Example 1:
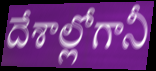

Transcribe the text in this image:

దేశాల్లోగానీ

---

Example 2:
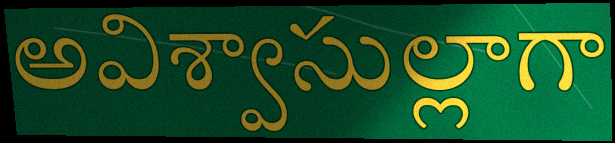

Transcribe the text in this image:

అవిశ్వాసుల్లాగా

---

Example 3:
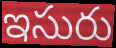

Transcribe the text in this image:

ఇసురు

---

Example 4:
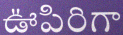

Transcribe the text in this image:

ఊపిరిగా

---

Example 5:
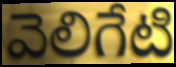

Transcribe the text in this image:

వెలిగేటి